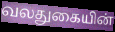
வலதுகையின்